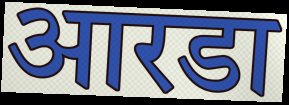
आरडा